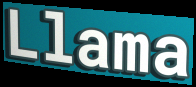
Llama